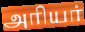
அரியர்